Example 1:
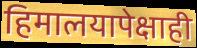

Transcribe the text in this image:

हिमालयापेक्षाही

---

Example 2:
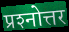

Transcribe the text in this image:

प्रश्नोत्तर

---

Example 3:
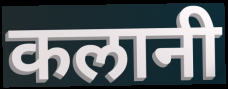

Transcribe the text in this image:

कलानी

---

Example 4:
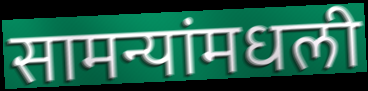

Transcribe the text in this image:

सामन्यांमधली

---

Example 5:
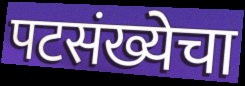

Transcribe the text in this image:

पटसंख्येचा